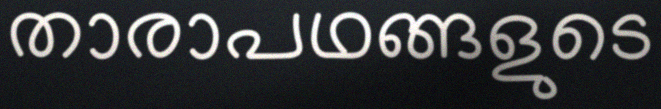
താരാപഥങ്ങളുടെ